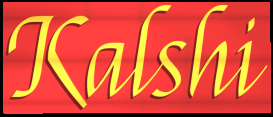
Kalshi